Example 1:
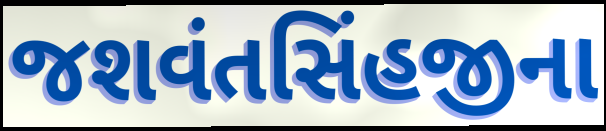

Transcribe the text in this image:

જશવંતસિંહજીના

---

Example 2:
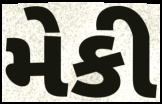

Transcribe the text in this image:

મેકી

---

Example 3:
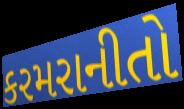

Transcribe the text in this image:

કરમરાનીતો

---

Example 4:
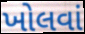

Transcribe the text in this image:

ખોલવાં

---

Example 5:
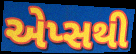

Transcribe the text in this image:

એપ્સથી